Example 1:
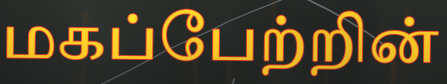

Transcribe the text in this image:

மகப்பேற்றின்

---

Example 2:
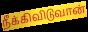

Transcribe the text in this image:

நீக்கிவிடுவான்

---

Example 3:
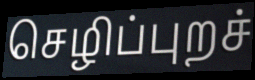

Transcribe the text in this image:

செழிப்புறச்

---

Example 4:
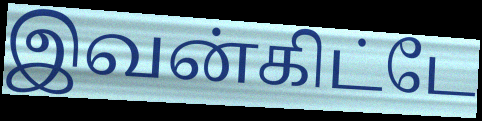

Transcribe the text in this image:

இவன்கிட்டே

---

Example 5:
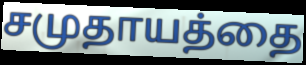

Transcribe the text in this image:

சமுதாயத்தை